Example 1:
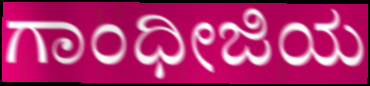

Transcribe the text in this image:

ಗಾಂಧೀಜಿಯ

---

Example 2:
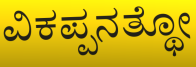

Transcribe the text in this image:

ವಿಕಪ್ಪನತ್ಥೋ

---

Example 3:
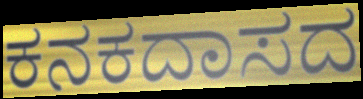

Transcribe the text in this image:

ಕನಕದಾಸದ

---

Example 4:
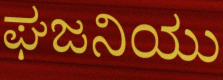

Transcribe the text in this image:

ಘಜನಿಯು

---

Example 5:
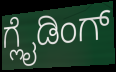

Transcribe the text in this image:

ಗ್ಲೈಡಿಂಗ್